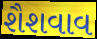
શૈશવાવ